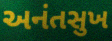
અનંતસુખ